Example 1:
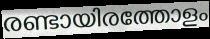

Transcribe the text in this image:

രണ്ടായിരത്തോളം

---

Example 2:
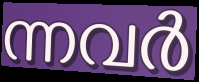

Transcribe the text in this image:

ന്നവർ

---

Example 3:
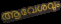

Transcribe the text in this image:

ആവേശവും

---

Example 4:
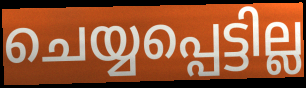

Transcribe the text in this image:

ചെയ്യപ്പെട്ടില്ല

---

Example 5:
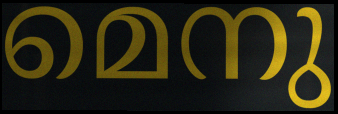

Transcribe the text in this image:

മെനു